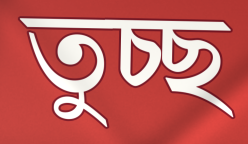
তুচ্ছ